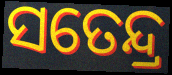
ସତେନ୍ଦ୍ର